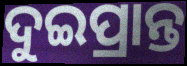
ଦୁଇପ୍ରାନ୍ତ